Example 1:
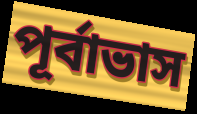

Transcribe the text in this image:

পূৰ্বাভাস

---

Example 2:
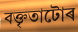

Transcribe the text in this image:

বক্তৃতাটোৰ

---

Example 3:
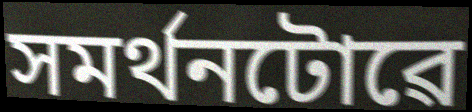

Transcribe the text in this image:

সমৰ্থনটোৱে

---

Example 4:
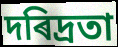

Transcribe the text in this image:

দৰিদ্ৰতা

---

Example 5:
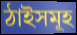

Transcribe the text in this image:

ঠাইসমূহ